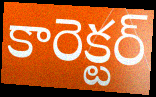
కారెక్టర్